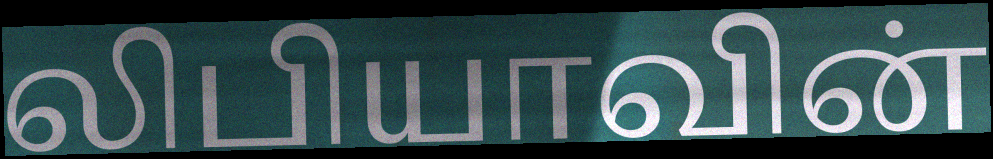
லிபியாவின்